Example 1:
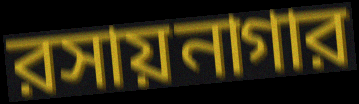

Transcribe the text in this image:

রসায়নাগার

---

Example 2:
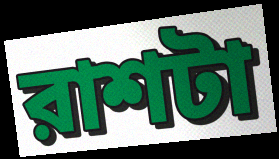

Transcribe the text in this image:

রাশটা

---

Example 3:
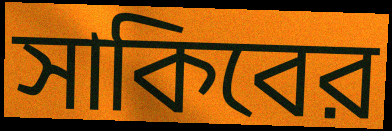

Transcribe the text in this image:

সাকিবের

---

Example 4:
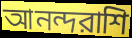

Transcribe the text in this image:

আনন্দরাশি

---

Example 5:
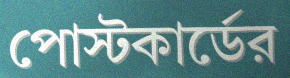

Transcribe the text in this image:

পোস্টকার্ডের